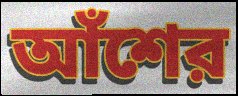
আঁশের